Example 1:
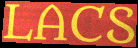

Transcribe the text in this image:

LACS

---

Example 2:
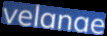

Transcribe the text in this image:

velanae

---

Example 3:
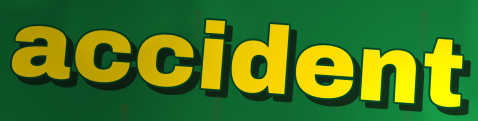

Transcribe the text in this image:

accident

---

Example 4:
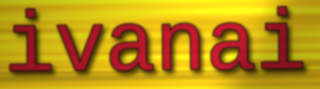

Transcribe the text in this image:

ivanai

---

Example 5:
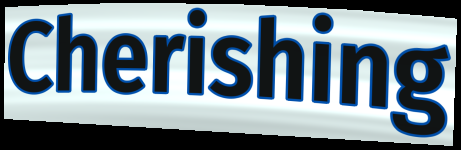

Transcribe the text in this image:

Cherishing